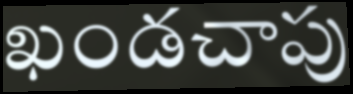
ఖండచాపు